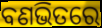
ବଣଭିତରେ